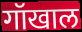
गॉखाल